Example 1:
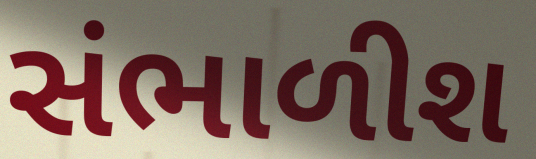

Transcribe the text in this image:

સંભાળીશ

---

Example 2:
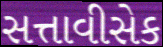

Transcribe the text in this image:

સત્તાવીસેક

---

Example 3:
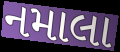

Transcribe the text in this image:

નમાલા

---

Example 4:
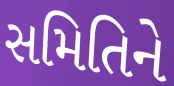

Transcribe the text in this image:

સમિતિને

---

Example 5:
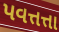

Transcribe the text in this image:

પવત્તત્તા